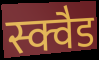
स्क्वैड